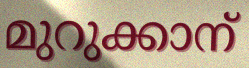
മുറുക്കാന്